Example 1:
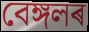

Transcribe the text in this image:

বেঙ্গলৰ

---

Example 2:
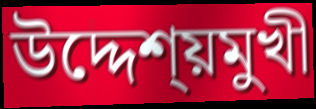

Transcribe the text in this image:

উদ্দেশ্য়মুখী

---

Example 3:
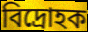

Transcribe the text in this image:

বিদ্ৰোহক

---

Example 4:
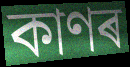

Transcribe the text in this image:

কাণৰ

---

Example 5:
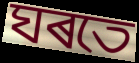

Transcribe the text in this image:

ঘৰতে